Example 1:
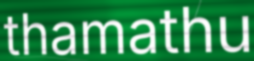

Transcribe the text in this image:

thamathu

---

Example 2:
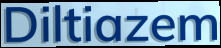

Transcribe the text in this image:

Diltiazem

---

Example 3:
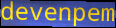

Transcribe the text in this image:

devenpem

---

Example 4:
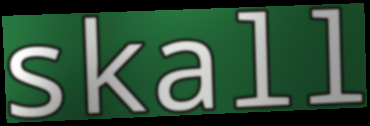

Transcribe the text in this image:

skall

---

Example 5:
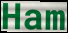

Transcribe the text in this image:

Ham